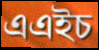
এএইচ